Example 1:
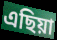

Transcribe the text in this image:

এছিয়া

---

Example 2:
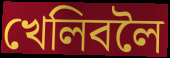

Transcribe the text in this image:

খেলিবলৈ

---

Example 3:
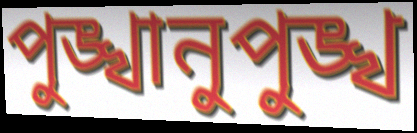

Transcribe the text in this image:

পুঙ্খানুপুঙ্খ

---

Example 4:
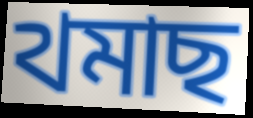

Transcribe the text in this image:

থমাছ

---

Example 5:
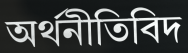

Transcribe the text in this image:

অৰ্থনীতিবিদ